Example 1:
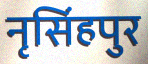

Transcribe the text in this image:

नृसिंहपुर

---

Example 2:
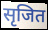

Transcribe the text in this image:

सृजित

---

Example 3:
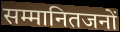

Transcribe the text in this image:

सम्मानितजनों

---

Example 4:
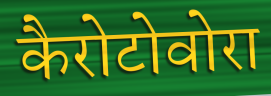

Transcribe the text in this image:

कैरोटोवोरा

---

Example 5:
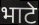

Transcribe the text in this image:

भाटे